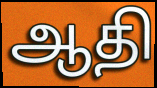
ஆதி